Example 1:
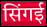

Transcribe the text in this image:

सिंगई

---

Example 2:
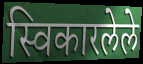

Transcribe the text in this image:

स्विकारलेले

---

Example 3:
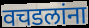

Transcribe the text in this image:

वचडलांना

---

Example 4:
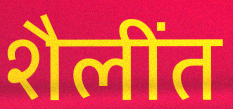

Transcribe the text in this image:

शैलींत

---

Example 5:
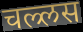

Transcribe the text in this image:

चल्लस